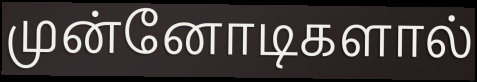
முன்னோடிகளால்